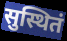
सुस्थितं